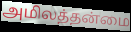
அமிலத்தன்மை